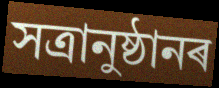
সত্ৰানুষ্ঠানৰ